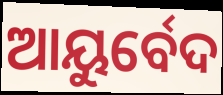
ଆୟୁର୍ବେଦ